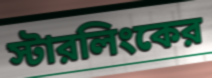
স্টারলিংকের